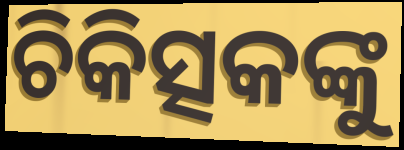
ଚିକିତ୍ସକଙ୍କୁ